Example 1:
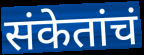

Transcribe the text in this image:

संकेतांचं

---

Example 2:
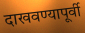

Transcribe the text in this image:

दाखवण्यापूर्वी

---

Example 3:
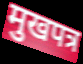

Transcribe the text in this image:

मुखपत्र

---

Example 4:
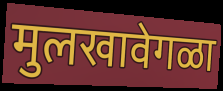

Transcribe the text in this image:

मुलखावेगळा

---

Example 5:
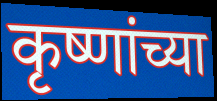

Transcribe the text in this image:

कृष्णांच्या